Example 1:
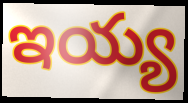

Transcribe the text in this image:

ఇయ్య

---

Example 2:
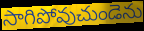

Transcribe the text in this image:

సాగిపోవుచుండెను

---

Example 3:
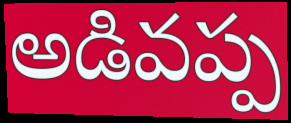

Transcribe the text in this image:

అడివప్ప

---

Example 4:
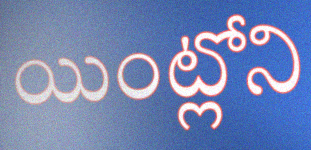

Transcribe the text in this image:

యింట్లోని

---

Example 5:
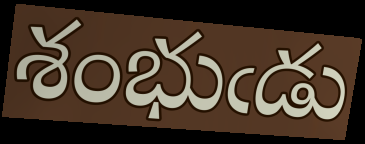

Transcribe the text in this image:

శంభుఁడు